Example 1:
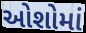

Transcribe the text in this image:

ઓશોમાં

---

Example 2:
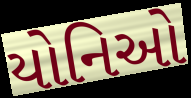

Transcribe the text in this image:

યોનિઓ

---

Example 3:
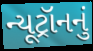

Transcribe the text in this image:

ન્યૂટ્રૉનનું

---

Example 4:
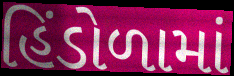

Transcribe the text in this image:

હિંડોળામાં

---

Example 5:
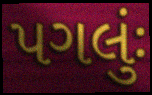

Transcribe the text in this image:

પગલુંઃ